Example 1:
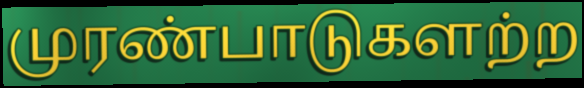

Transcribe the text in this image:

முரண்பாடுகளற்ற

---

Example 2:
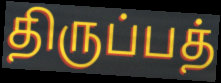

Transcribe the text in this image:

திருப்பத்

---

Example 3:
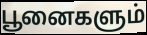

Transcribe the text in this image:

பூனைகளும்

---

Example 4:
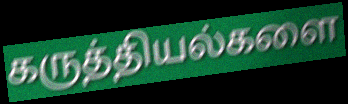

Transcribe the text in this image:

கருத்தியல்களை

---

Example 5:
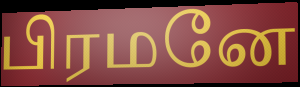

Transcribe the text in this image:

பிரமனே